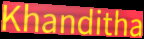
Khanditha